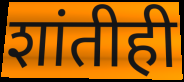
शांतीही